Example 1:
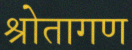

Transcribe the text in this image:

श्रोतागण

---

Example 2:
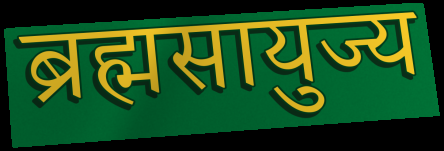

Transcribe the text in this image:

ब्रह्मसायुज्य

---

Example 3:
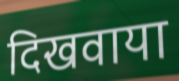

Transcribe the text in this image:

दिखवाया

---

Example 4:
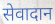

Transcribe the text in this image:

सेवादान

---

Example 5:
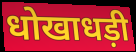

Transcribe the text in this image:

धोखाधड़ी